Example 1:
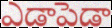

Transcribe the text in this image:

ఎడాపెడా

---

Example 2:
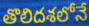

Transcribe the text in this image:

తొలిదశలోనే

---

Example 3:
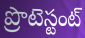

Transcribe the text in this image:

ప్రొటెస్టంట్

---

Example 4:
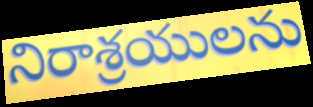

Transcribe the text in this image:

నిరాశ్రయులను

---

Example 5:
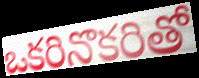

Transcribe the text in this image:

ఒకరినొకరితో